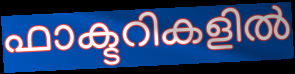
ഫാക്ടറികളിൽ